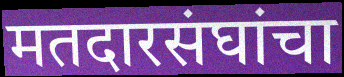
मतदारसंघांचा